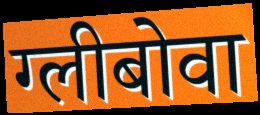
ग्लीबोवा